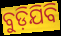
ବୁଡ଼ିଯିବି